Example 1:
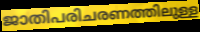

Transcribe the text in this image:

ജാതിപരിചരണത്തിലുള്ള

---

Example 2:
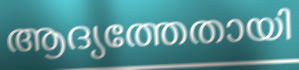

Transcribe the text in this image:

ആദ്യത്തേതായി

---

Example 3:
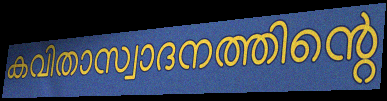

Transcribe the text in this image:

കവിതാസ്വാദനത്തിന്റെ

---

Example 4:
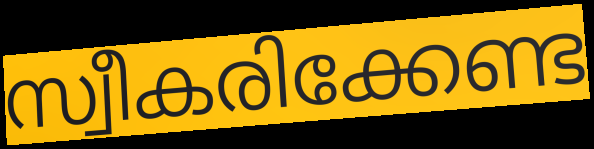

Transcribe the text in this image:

സ്വീകരിക്കേണ്ട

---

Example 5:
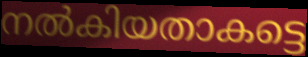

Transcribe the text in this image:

നൽകിയതാകട്ടെ